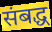
संबद्ध